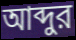
আব্দুর